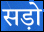
सड़ो